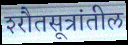
श्रौतसूत्रांतील